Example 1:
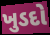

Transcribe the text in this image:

ખુડદો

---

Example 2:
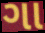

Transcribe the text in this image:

ગા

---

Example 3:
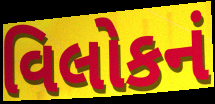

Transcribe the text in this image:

વિલોકનં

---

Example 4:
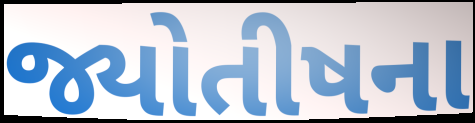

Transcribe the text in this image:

જ્યોતીષના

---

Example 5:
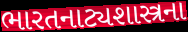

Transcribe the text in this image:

ભારતનાટ્યશાસ્ત્રના